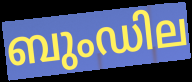
ബുംഡില